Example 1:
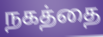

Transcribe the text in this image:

நகத்தை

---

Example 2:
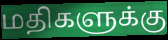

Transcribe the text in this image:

மதிகளுக்கு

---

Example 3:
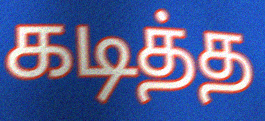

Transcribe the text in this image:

கடித்த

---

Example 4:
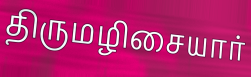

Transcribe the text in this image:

திருமழிசையார்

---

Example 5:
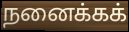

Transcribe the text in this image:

நனைக்கக்